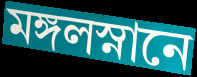
মঙ্গলস্নানে